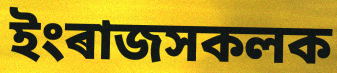
ইংৰাজসকলক